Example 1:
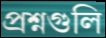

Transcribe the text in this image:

প্রশ্নগুলি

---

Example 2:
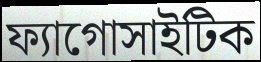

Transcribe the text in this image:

ফ্যাগোসাইটিক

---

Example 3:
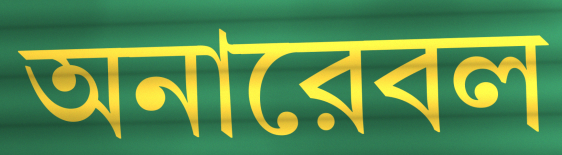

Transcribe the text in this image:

অনারেবল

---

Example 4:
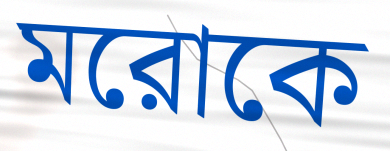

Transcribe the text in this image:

মরোকে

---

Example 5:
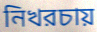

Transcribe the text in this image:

নিখরচায়